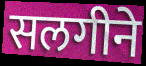
सलगीने